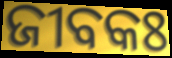
ଜୀବକଃ